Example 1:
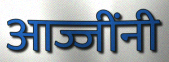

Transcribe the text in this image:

आज्जींनी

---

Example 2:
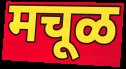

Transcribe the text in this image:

मचूळ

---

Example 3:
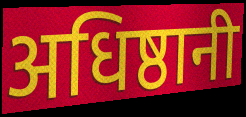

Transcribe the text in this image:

अधिष्ठानी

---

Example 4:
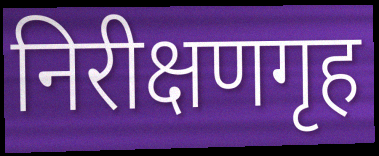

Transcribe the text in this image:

निरीक्षणगृह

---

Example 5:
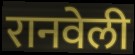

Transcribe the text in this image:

रानवेली